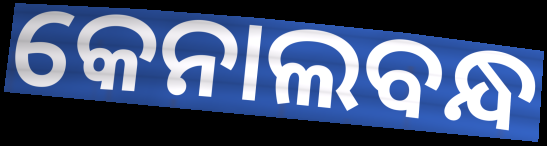
କେନାଲବନ୍ଧ